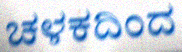
ಚಳಕದಿಂದ